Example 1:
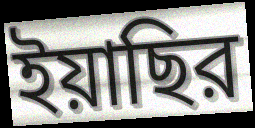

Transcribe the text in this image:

ইয়াছির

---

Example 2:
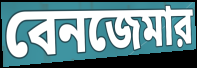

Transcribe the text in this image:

বেনজেমার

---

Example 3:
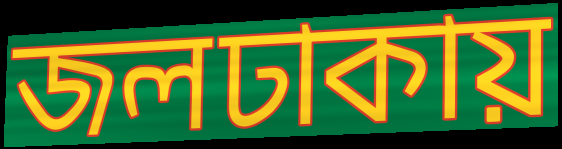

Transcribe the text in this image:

জলঢাকায়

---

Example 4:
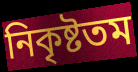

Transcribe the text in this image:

নিকৃষ্টতম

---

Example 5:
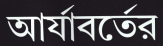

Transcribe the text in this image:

আর্যাবর্তের